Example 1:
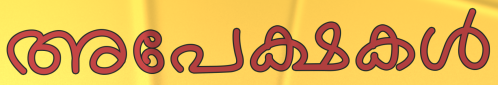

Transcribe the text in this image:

അപേക്ഷകൾ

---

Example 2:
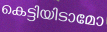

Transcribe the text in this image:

കെട്ടിയിടാമോ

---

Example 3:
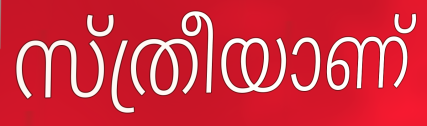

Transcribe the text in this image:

സ്ത്രീയാണ്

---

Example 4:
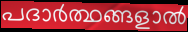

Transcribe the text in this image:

പദാർത്ഥങ്ങളാൽ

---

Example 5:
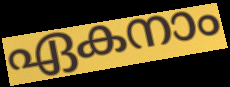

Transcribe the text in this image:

ഏകനാം